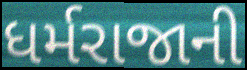
ધર્મરાજાની